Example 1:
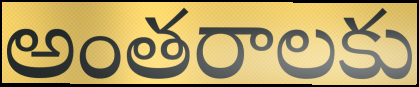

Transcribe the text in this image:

అంతరాలకు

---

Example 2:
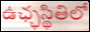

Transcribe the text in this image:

ఉఛ్ఛస్థితిలో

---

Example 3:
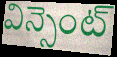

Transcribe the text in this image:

విన్సెంట్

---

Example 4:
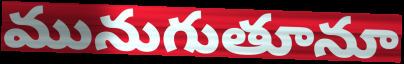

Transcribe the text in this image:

మునుగుతూనూ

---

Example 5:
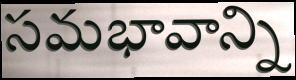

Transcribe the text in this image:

సమభావాన్ని